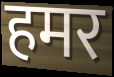
हमर